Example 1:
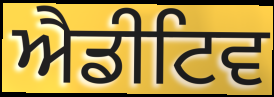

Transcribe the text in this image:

ਐਡੀਟਿਵ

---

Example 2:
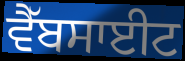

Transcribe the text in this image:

ਵੈੱਬਸਾਈਟ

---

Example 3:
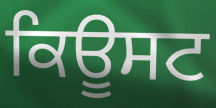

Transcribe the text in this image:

ਕਿਊਸਟ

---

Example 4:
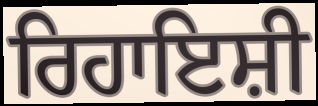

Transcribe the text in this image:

ਰਿਹਾਇਸ਼ੀ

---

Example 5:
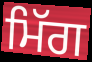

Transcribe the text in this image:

ਮਿੱਗ